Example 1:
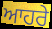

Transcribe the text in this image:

ਆਹਰੇ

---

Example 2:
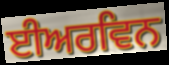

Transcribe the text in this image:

ਈਅਰਵਿਨ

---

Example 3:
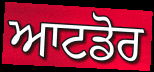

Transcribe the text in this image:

ਆਟਡੋਰ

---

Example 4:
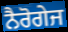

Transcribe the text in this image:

ਨੈਰੋਗੇਜ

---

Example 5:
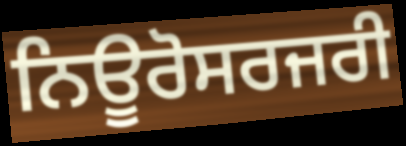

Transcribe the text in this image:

ਨਿਊਰੋਸਰਜਰੀ